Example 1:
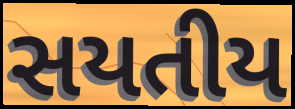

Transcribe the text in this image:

સયતીય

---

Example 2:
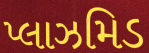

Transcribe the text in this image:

પ્લાઝમિડ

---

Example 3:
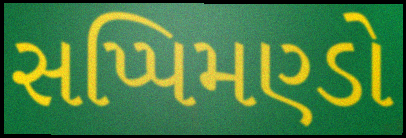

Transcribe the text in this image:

સપ્પિમણ્ડો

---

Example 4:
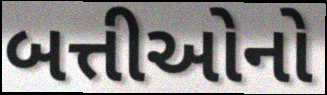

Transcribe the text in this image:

બત્તીઓનો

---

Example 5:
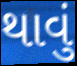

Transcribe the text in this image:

થાવું